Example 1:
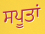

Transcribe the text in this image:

ਸਪੂਤਾਂ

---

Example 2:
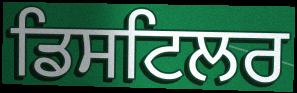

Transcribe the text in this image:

ਡਿਸਟਿਲਰ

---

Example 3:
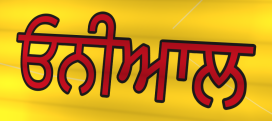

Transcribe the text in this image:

ਓਨੀਆਲ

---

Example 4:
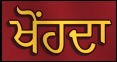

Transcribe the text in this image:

ਖੋਂਹਦਾ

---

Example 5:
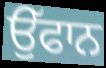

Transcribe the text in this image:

ਉੱਫਾਨ